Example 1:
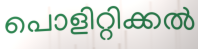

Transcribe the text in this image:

പൊളിറ്റിക്കൽ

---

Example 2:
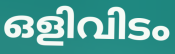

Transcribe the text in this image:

ഒളിവിടം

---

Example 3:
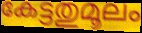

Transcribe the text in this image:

കേട്ടതുമൂലം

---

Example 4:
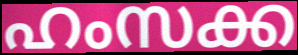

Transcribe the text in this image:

ഹംസക്ക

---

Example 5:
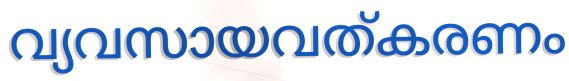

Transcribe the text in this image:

വ്യവസായവത്കരണം